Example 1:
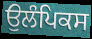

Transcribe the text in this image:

ਉਲੰਪਿਕਸ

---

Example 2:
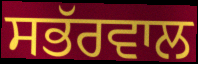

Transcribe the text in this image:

ਸਭੱਰਵਾਲ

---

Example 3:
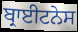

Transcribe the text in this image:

ਬ੍ਰਾਈਟਨੇਸ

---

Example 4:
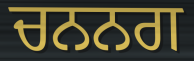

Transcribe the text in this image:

ਚਨਨਗ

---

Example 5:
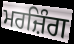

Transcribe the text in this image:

ਮਰਜ਼ਿੰਗ